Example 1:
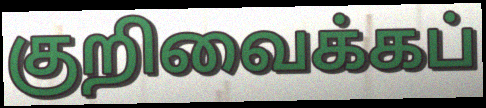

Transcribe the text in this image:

குறிவைக்கப்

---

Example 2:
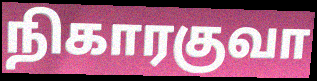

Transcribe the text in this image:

நிகாரகுவா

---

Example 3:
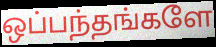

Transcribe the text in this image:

ஒப்பந்தங்களே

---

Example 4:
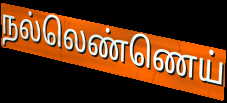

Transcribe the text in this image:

நல்லெண்ணெய்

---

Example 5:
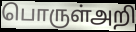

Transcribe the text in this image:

பொருள்அறி